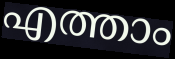
എത്താം